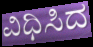
ವಿಧಿಸಿದ